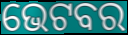
ଭେଟବର